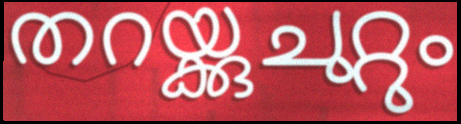
തറയ്ക്കുചുറ്റും